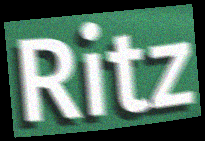
Ritz